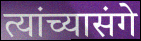
त्यांच्यासंगे